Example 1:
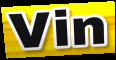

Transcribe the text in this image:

Vin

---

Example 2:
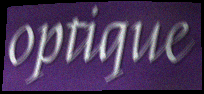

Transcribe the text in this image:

optique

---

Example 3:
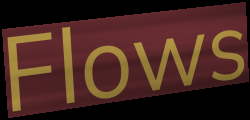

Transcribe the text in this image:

Flows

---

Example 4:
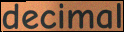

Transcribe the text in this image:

decimal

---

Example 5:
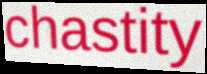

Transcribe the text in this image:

chastity